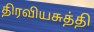
திரவியசுத்தி